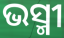
ଭସ୍ମୀ